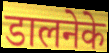
डालनेके